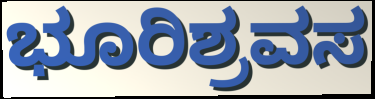
ಭೂರಿಶ್ರವಸ